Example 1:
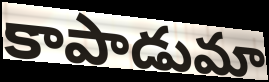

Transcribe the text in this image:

కాపాడుమా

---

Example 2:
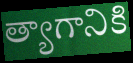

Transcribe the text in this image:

త్యాగానికి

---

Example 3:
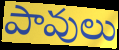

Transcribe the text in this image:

పావులు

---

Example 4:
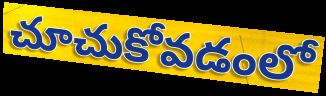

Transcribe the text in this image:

చూచుకోవడంలో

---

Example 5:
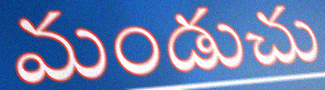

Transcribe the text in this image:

మండుచు